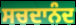
ਸਚਦਾਨੰਦ